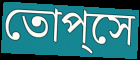
তোপ্‌সে